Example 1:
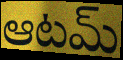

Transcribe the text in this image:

ఆటమ్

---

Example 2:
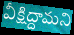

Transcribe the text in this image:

వీక్షిద్దామని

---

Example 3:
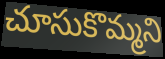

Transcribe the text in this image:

చూసుకొమ్మని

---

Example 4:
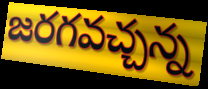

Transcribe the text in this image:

జరగవచ్చన్న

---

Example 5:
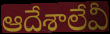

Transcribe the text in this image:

ఆదేశాలేవీ